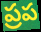
ప్రప